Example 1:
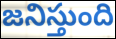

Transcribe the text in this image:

జనిస్తుంది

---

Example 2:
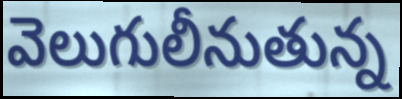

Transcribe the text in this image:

వెలుగులీనుతున్న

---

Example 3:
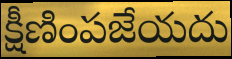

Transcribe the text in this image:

క్షీణింపజేయదు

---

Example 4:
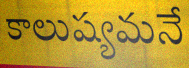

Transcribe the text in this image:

కాలుష్యమనే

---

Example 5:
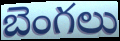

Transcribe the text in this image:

బెంగలు